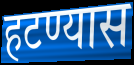
हटण्यास